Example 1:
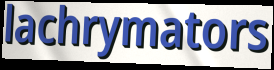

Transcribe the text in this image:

lachrymators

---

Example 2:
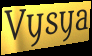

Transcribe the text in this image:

Vysya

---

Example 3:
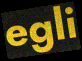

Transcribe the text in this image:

egli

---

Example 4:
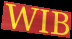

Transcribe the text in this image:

WIB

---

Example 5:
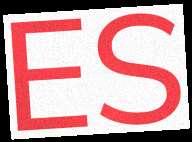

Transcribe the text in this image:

ES